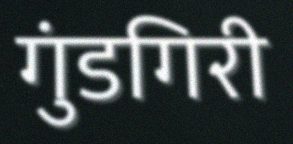
गुंडगिरी